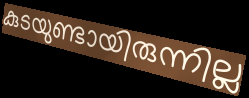
കുടയുണ്ടായിരുന്നില്ല